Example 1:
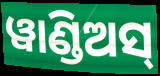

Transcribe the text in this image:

ୱାଣ୍ଡିଅସ୍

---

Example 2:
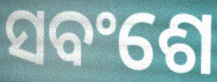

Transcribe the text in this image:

ସବଂଶେ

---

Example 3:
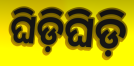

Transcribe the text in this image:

ଘିଡ଼ିଘିଡ଼ି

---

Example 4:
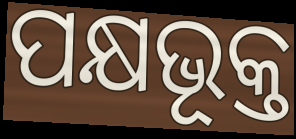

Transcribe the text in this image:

ପକ୍ଷଭୂକ୍ତ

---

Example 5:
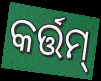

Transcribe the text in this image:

କର୍ତ୍ତମ୍